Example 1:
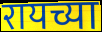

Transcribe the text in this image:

रायच्या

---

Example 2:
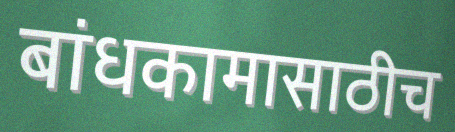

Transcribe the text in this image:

बांधकामासाठीच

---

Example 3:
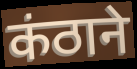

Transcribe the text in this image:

कंठाने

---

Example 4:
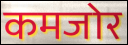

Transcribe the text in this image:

कमजोर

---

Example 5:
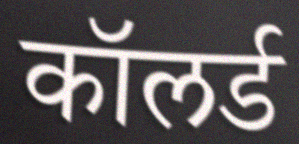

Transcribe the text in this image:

कॉलर्ड